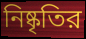
নিষ্কৃতির